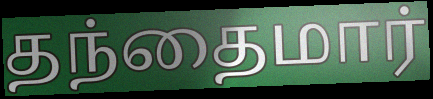
தந்தைமார்